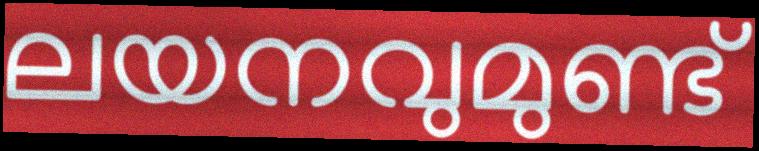
ലയനവുമുണ്ട്